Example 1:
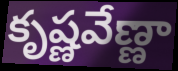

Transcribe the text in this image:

కృష్ణవేణ్ణా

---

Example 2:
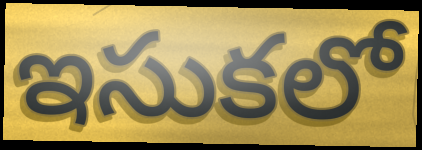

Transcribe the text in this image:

ఇసుకలో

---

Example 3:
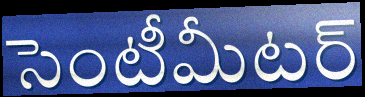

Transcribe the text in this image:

సెంటీమీటర్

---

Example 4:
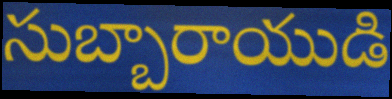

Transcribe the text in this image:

సుబ్బారాయుడి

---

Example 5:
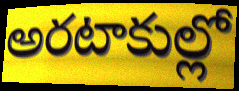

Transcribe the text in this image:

అరటాకుల్లో